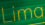
Lima